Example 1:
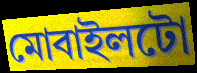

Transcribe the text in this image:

মোবাইলটো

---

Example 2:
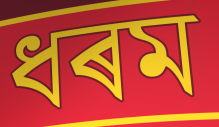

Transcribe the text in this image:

ধৰম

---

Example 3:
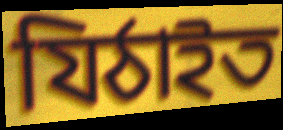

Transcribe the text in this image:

যিঠাইত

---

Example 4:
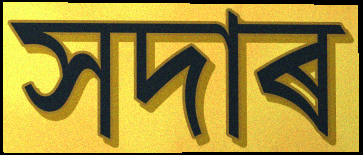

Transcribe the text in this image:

সদাৰ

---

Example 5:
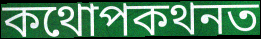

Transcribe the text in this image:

কথোপকথনত